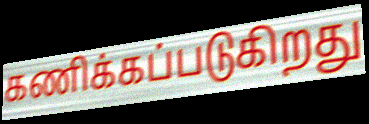
கணிக்கப்படுகிறது